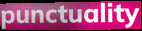
punctuality